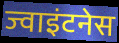
ज्वाइंटनेस